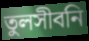
তুলসীবনি